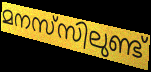
മനസ്‌സിലുണ്ട്